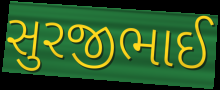
સુરજીભાઈ